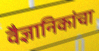
वैज्ञानिकांचा